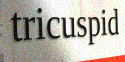
tricuspid